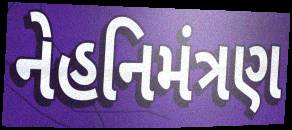
નેહનિમંત્રણ